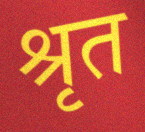
श्रृत